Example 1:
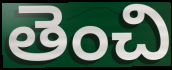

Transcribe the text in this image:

తెంచి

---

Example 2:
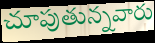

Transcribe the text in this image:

చూపుతున్నవారు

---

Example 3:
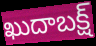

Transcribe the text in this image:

ఖుదాబక్ష్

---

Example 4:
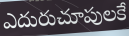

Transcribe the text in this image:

ఎదురుచూపులకే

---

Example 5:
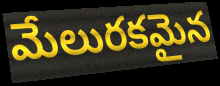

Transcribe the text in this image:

మేలురకమైన